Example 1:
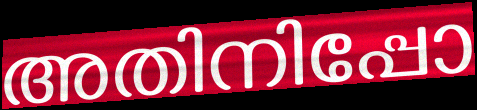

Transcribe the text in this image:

അതിനിപ്പോ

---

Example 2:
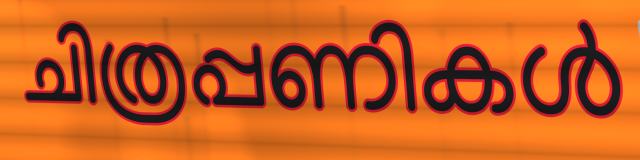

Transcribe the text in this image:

ചിത്രപ്പണികൾ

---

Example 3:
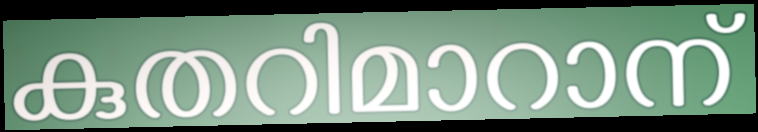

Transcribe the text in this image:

കുതറിമാറാന്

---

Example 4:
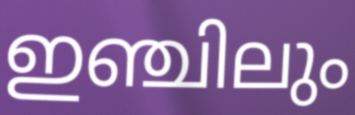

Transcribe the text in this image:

ഇഞ്ചിലും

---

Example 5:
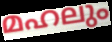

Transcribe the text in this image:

മഹലും